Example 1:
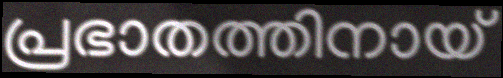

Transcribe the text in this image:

പ്രഭാതത്തിനായ്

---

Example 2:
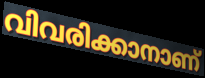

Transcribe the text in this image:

വിവരിക്കാനാണ്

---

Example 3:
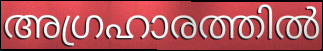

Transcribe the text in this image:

അഗ്രഹാരത്തിൽ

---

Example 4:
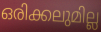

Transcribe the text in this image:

ഒരിക്കലുമില്ല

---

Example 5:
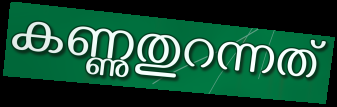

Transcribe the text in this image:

കണ്ണുതുറന്നത്